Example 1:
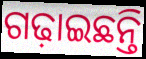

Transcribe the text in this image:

ଗଢ଼ାଇଛନ୍ତି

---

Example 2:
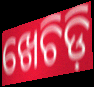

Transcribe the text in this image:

ଖେଚିଡ଼ି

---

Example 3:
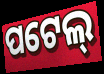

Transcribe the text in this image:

ପଟେଲ୍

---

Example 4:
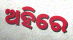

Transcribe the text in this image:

ଅହିରେ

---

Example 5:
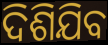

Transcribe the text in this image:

ଦିଶିଯିବ